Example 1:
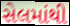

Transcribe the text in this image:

સેલમાંથી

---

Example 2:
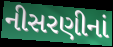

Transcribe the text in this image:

નીસરણીનાં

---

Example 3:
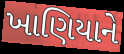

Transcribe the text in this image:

ખાણિયાને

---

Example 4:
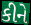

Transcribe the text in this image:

કીને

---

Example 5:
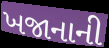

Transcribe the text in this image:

ખજાનાની